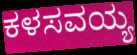
ಕಳಸವಯ್ಯ